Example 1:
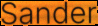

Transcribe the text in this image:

Sander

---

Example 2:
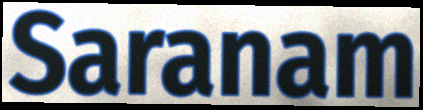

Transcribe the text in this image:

Saranam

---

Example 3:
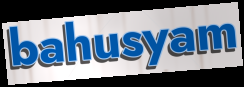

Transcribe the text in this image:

bahusyam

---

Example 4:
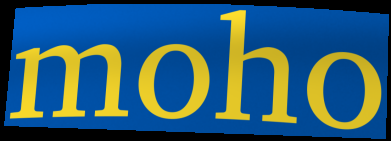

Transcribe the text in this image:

moho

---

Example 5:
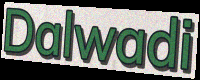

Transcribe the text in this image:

Dalwadi